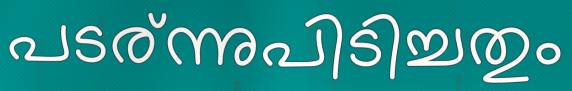
പടര്ന്നുപിടിച്ചതും